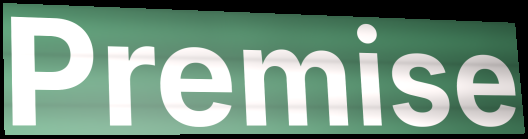
Premise